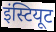
इंस्टियूट